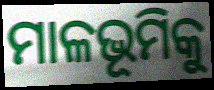
ମାଳଭୂମିକୁ